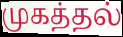
முகத்தல்